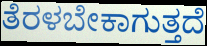
ತೆರಳಬೇಕಾಗುತ್ತದೆ